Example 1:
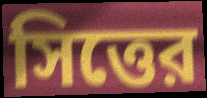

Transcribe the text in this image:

সিত্তের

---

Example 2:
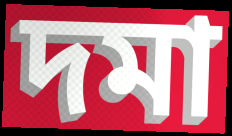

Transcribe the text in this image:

দমা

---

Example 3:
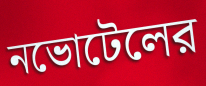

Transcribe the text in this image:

নভোটেলের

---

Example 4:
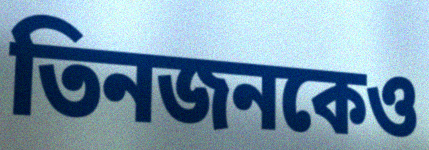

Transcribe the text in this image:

তিনজনকেও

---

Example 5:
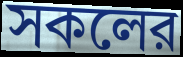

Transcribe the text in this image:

সকলের